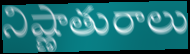
నిష్ణాతురాలు